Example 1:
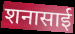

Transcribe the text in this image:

शनासाई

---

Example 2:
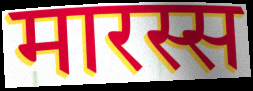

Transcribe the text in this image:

मारस्स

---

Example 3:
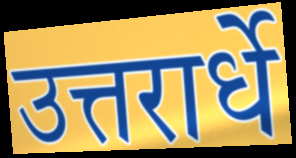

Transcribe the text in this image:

उत्तरार्धे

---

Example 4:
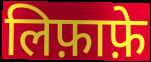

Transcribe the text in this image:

लिफ़ाफ़े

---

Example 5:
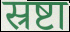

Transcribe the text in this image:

स्रष्टा